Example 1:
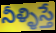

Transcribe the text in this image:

నీళ్ళిస్తే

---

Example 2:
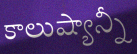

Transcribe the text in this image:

కాలుష్యాన్నీ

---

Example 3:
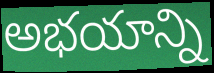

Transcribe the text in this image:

అభయాన్ని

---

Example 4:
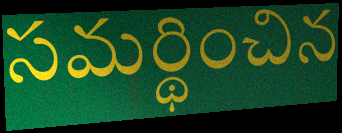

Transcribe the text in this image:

సమర్థించిన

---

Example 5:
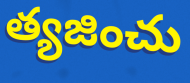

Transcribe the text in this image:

త్యజించు